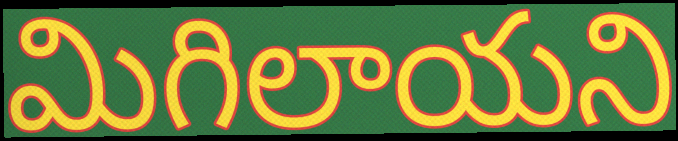
మిగిలాయని